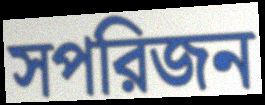
সপরিজন